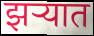
झर्‍यात